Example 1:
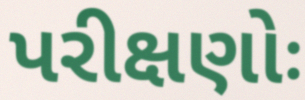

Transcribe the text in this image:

પરીક્ષણોઃ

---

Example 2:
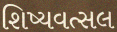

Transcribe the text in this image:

શિષ્યવત્સલ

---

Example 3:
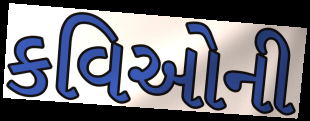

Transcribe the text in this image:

કવિઓની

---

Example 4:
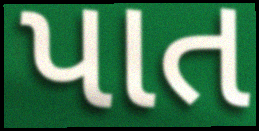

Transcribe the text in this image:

પાત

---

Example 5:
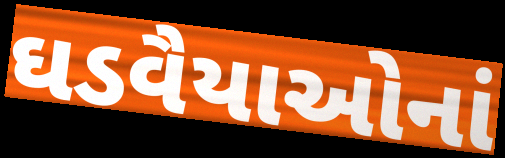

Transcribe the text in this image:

ઘડવૈયાઓનાં